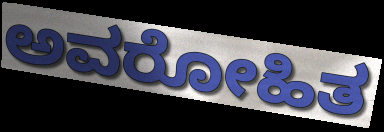
ಅವರೋಹಿತ